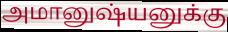
அமானுஷ்யனுக்கு